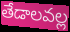
తేడాలవల్ల